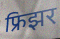
फ्रिझर